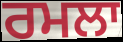
ਰਮਲਾ